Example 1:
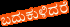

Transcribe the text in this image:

ಬದುಕುಳಿದರೆ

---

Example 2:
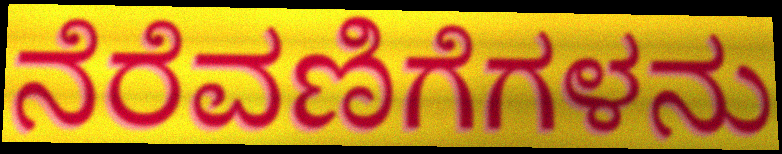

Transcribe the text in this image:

ನೆರೆವಣಿಗೆಗಳನು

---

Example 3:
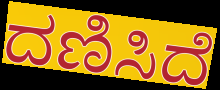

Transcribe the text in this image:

ದಣಿಸಿದೆ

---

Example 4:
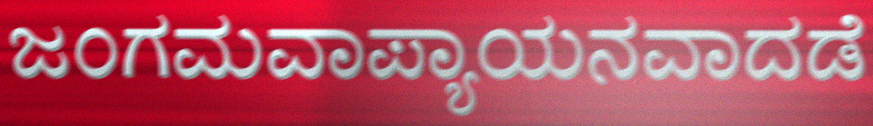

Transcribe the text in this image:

ಜಂಗಮವಾಪ್ಯಾಯನವಾದಡೆ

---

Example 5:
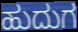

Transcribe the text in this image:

ಹುದುಗ